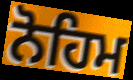
ਨੋਹਿਮ